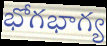
భోగభాగ్య